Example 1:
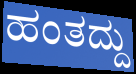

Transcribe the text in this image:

ಹಂತದ್ದು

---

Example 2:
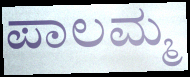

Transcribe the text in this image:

ಪಾಲಮ್ಮ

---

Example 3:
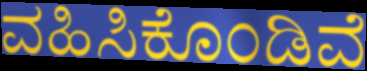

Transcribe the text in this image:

ವಹಿಸಿಕೊಂಡಿವೆ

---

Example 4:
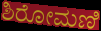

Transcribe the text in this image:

ಶಿರೋಮಣಿ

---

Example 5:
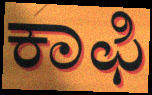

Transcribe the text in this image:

ಕಾಫಿ